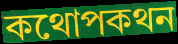
কথোপকথন